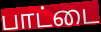
பாட்டை